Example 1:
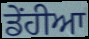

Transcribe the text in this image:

ਡੇਂਹੀਆ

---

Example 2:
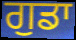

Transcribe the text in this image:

ਗੁਡਾ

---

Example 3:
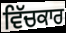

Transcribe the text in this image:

ਵਿੱਚਕਾਰ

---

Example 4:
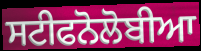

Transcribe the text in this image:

ਸਟੀਫਨੋਲੋਬੀਆ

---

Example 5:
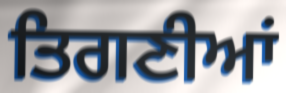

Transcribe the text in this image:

ਤਿਗਣੀਆਂ